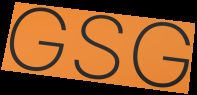
GSG